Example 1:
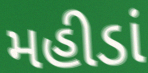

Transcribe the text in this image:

મહીડાં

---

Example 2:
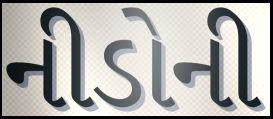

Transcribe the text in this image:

નીડોની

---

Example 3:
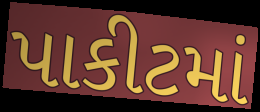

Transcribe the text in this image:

પાકીટમાં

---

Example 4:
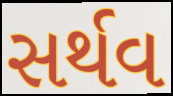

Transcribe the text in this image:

સર્થવ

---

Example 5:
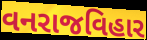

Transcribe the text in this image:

વનરાજવિહાર